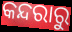
କନ୍ଦରାରୁ